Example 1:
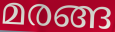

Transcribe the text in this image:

മരങ്ങ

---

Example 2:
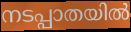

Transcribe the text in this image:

നടപ്പാതയിൽ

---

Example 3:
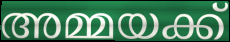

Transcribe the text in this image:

അമ്മയക്ക്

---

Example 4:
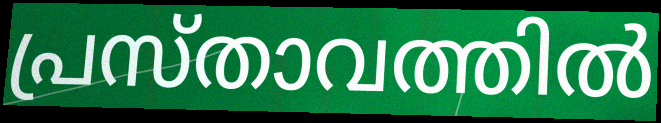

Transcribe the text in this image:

പ്രസ്താവത്തിൽ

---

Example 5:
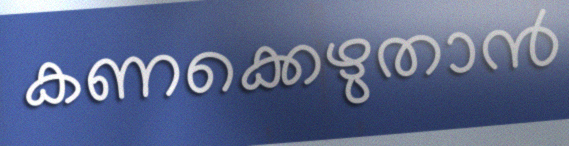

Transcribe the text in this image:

കണക്കെഴുതാൻ